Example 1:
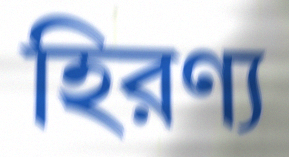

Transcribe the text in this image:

হিরণ্য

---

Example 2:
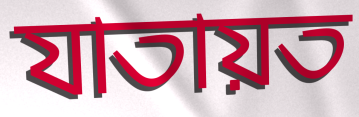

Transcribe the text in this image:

যাতায়ত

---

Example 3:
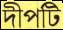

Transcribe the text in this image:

দীপটি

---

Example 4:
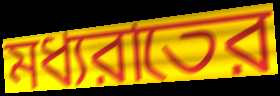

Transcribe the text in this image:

মধ্যরাতের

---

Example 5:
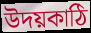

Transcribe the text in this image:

উদয়কাঠি